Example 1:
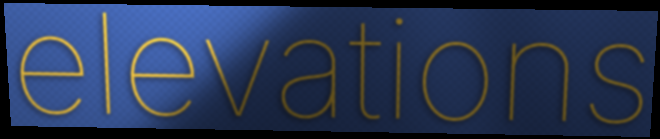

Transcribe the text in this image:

elevations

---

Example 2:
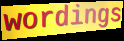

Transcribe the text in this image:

wordings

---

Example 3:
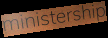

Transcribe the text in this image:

ministership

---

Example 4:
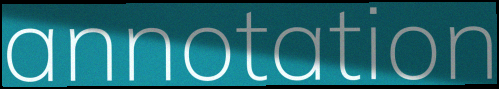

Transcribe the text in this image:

annotation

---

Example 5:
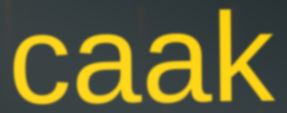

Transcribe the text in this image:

caak